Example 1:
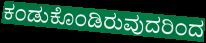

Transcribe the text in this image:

ಕಂಡುಕೊಂಡಿರುವುದರಿಂದ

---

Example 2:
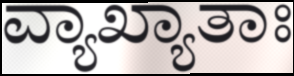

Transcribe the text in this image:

ವ್ಯಾಖ್ಯಾತಾಃ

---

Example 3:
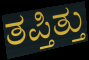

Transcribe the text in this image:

ತಪ್ತಿತ್ತು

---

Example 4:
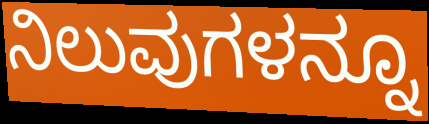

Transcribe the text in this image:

ನಿಲುವುಗಳನ್ನೂ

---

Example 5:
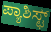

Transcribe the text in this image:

ಪ್ಯಾಶಿಸ್ಟ್